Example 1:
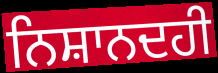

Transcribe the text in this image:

ਨਿਸ਼ਾਨਦਹੀ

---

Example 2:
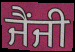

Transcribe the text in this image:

ਜੈਂਜੀ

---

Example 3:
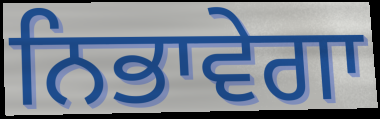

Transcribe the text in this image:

ਨਿਭਾਵੇਗਾ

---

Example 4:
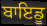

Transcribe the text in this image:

ਬਾਇਡੂ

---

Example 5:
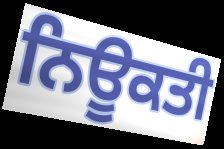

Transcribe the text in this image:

ਨਿਊਕਤੀ